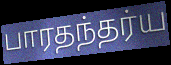
பாரதந்தர்ய